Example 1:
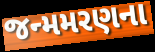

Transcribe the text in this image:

જન્મમરણના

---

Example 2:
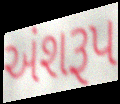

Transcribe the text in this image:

અંશરૂપ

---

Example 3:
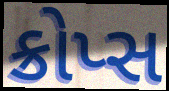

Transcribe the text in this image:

ક્રોપ્સ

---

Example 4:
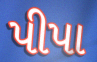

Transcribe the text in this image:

પીપા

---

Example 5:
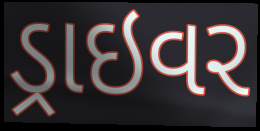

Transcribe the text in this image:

ડ્રાઇવર